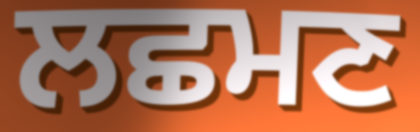
ਲਛਮਣ